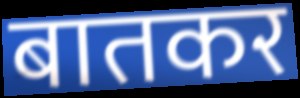
बातकर